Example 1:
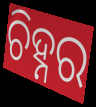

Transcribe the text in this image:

ଚିହ୍ନର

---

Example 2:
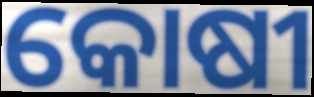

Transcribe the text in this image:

କୋଷୀ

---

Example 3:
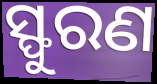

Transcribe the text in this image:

ସ୍ଫୁରଣ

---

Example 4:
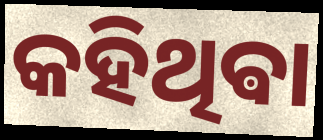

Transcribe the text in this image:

କହିଥିଵା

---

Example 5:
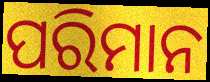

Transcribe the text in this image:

ପରିମାନ